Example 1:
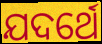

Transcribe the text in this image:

ଯଦର୍ଥେ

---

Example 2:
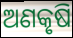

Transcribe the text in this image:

ଅଣକୃଷି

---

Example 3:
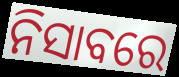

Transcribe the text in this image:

ନିସାବରେ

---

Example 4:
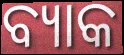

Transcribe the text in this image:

ବ୍ୟାକ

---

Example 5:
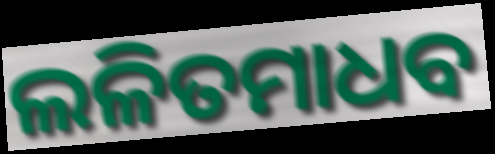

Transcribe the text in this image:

ଲଳିତମାଧବ